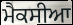
ਮੈਕਸੀਆ